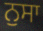
ਨੁਸਾ